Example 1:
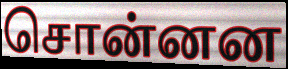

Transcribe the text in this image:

சொன்னன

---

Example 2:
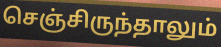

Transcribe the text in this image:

செஞ்சிருந்தாலும்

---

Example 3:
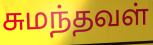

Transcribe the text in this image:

சுமந்தவள்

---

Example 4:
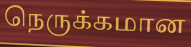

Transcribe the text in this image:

நெருக்கமான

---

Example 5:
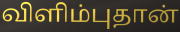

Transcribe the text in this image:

விளிம்புதான்